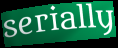
serially